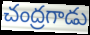
చంద్రగాడు